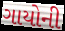
ગાયોની